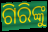
ଗିରିଙ୍କୁ